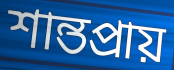
শান্তপ্রায়